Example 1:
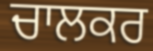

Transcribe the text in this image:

ਚਾਲਕਰ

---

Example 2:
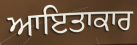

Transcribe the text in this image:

ਆਇਤਾਕਾਰ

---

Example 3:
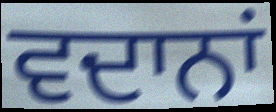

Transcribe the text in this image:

ਵਦਾਨਾਂ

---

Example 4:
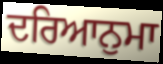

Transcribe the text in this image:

ਦਰਿਆਨੁਮਾ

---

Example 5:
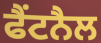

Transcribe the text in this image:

ਫੈਂਟਨੈਲ